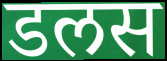
डलस